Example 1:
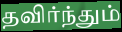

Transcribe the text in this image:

தவிர்ந்தும்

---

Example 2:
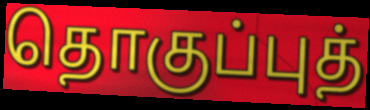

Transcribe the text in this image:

தொகுப்புத்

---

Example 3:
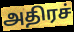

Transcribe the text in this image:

அதிரச்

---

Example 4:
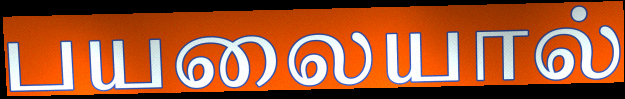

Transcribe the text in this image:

பயலையால்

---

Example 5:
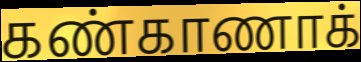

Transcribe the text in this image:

கண்காணாக்